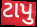
ટાપુ